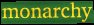
monarchy